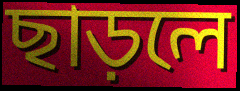
ছাড়লে